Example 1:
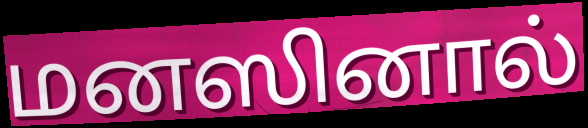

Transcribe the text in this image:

மனஸினால்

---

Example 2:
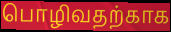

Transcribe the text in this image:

பொழிவதற்காக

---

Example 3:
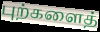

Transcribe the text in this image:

புற்களைத்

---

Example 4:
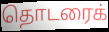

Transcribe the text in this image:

தொடரைக்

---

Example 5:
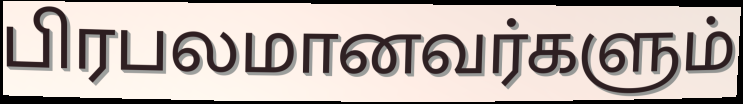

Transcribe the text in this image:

பிரபலமானவர்களும்